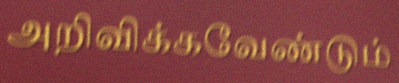
அறிவிக்கவேண்டும்